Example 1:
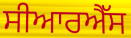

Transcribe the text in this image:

ਸੀਆਰਐੱਸ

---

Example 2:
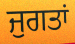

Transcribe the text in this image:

ਜੁਗਤਾਂ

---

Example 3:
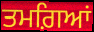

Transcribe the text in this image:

ਤਮਗ਼ਿਆਂ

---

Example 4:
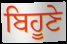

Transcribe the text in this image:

ਬਿਹੂਣੇ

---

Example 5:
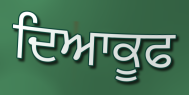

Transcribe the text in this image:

ਦਿਆਕੂਫ